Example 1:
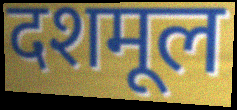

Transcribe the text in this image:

दशमूल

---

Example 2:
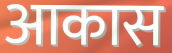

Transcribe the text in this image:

आकास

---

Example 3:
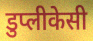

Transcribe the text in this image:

डुप्लीकेसी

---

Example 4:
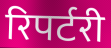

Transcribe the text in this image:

रिपर्टरी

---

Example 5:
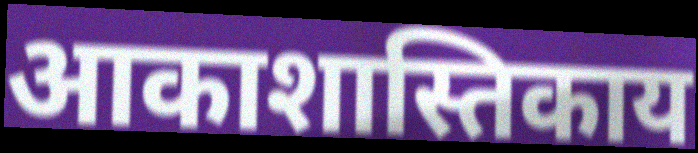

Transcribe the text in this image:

आकाशास्तिकाय